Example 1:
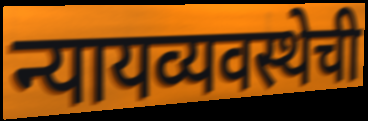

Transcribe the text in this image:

न्यायव्यवस्थेची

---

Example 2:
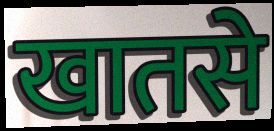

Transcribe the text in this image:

खातसे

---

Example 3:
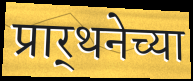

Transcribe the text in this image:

प्रार्थनेच्या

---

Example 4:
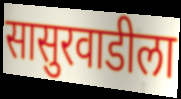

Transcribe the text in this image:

सासुरवाडीला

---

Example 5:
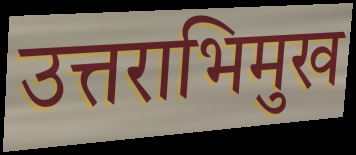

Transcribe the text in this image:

उत्तराभिमुख